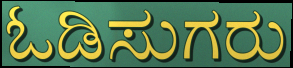
ಓಡಿಸುಗರು